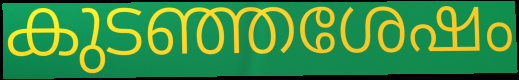
കുടഞ്ഞശേഷം